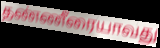
தண்ணீரையாவது